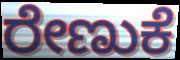
ರೇಣುಕೆ